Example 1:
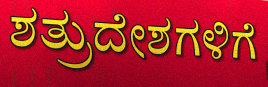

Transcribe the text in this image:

ಶತ್ರುದೇಶಗಳಿಗೆ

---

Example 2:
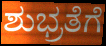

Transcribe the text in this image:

ಶುಭ್ರತೆಗೆ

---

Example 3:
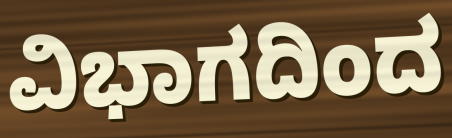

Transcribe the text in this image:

ವಿಭಾಗದಿಂದ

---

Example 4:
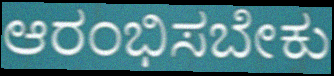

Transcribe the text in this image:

ಆರಂಭಿಸಬೇಕು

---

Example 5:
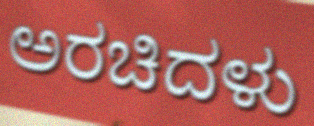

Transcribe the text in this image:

ಅರಚಿದಳು